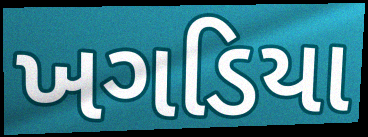
ખગડિયા